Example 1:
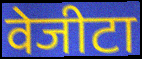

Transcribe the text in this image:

वेजीटा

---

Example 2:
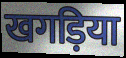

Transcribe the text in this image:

खगड़िया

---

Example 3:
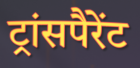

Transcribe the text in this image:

ट्रांसपैरेंट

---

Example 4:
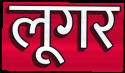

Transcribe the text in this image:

लूगर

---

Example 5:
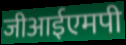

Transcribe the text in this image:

जीआईएमपी